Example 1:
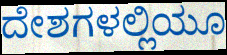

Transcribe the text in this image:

ದೇಶಗಳಲ್ಲಿಯೂ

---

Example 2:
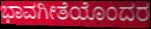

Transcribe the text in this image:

ಭಾವಗೀತೆಯೊಂದರ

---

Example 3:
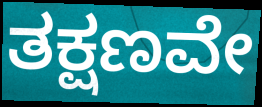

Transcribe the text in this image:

ತಕ್ಷಣವೇ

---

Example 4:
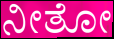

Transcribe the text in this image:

ನೀತೋ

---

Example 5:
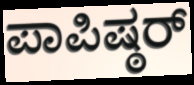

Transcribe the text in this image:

ಪಾಪಿಷ್ಠರ್